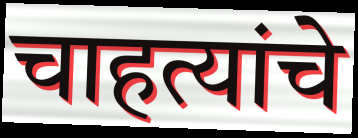
चाहत्यांचे